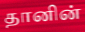
தானின்